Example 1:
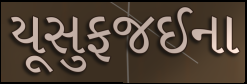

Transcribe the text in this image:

યૂસુફજઈના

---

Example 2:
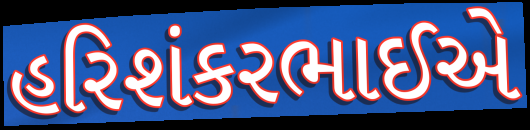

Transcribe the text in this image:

હરિશંકરભાઈએ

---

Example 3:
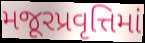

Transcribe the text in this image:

મજૂરપ્રવૃત્તિમાં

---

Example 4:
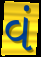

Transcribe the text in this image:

વં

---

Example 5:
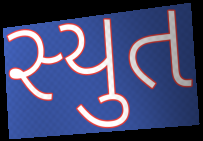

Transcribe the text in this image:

સ્યુત